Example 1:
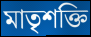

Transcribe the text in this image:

মাতৃশক্তি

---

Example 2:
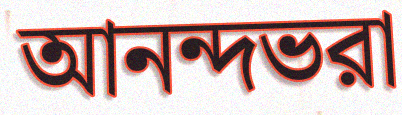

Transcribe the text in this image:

আনন্দভরা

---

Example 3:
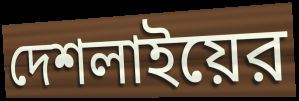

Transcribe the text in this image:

দেশলাইয়ের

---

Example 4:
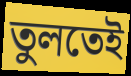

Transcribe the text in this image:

তুলতেই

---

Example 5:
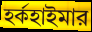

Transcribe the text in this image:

হর্কহাইমার